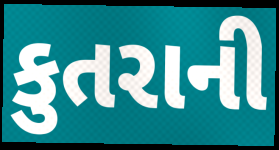
કુતરાની